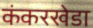
कंकरखेडा